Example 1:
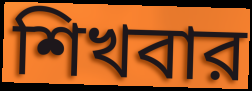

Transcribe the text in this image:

শিখবার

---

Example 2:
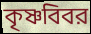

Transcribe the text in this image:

কৃষ্ণবিবর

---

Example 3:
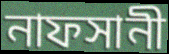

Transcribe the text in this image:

নাফসানী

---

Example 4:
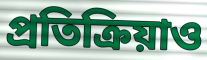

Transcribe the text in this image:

প্রতিক্রিয়াও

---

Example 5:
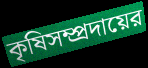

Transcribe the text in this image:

কৃষিসম্প্রদায়ের